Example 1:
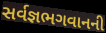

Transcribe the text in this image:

સર્વજ્ઞભગવાનની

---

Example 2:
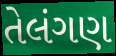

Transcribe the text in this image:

તેલંગણ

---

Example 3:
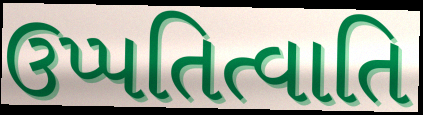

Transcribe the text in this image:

ઉપ્પતિત્વાતિ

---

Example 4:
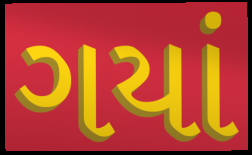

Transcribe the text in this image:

ગયાં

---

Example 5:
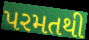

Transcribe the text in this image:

પરમતથી